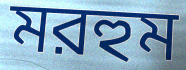
মরহুম